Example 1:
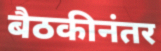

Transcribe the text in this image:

बैठकीनंतर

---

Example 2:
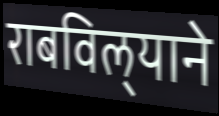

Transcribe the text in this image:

राबविल्याने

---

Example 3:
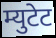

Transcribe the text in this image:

म्युटेट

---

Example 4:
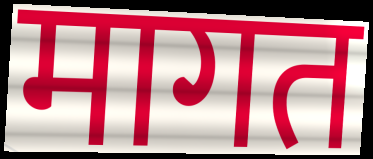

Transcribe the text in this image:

मागत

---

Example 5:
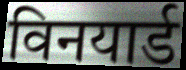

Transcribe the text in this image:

विनयार्ड